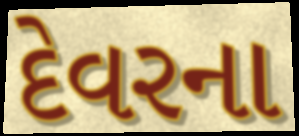
દેવરના